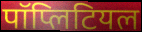
पॉप्लिटियल